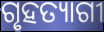
ଗୃହତ୍ୟାଗୀ